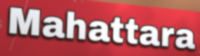
Mahattara